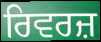
ਰਿਵਰਜ਼